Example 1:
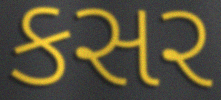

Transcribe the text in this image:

કસર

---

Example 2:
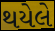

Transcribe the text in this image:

થયેલે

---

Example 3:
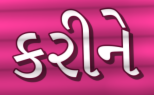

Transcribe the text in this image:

કરીને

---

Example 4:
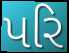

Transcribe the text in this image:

પરિ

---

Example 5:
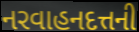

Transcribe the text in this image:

નરવાહનદત્તની